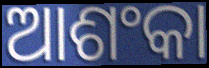
ଆଶଂକା